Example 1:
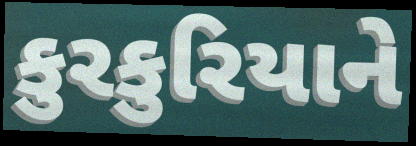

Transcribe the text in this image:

કુરકુરિયાને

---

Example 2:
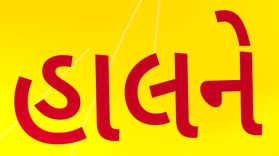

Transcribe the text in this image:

હાલને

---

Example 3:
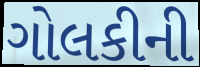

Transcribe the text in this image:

ગોલકીની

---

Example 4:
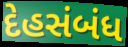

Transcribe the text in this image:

દેહસંબંધ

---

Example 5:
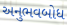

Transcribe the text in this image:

અનુભવબોધ